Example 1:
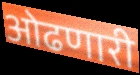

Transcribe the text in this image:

ओढणारी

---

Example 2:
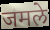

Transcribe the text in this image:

जमले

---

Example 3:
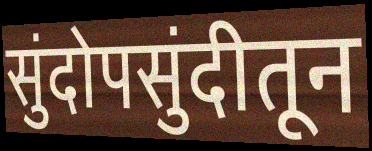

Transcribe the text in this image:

सुंदोपसुंदीतून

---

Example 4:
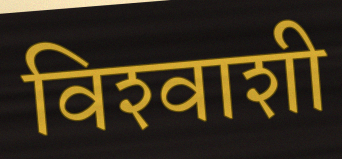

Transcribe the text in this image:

विश्वाशी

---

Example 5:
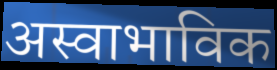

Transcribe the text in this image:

अस्वाभाविक